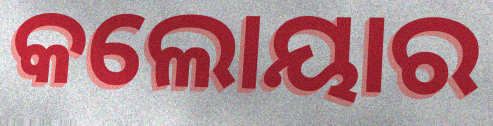
କଲୋୟାର